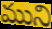
ముని